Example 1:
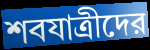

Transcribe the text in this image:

শবযাত্রীদের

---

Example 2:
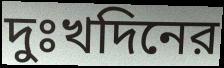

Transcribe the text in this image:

দুঃখদিনের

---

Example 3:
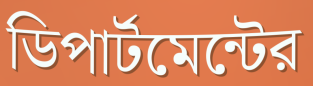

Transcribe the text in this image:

ডিপার্টমেন্টের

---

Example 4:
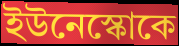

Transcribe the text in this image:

ইউনেস্কোকে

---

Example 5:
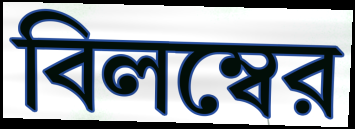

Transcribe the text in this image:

বিলম্বের